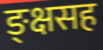
ङ्क्षसह